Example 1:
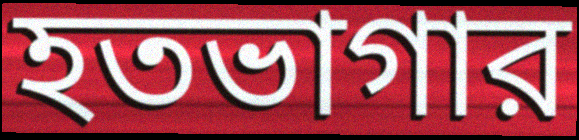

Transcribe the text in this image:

হতভাগার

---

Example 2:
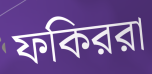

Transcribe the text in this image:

ফকিররা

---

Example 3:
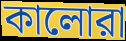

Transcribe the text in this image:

কালোরা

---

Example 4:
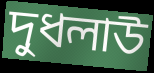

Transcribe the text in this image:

দুধলাউ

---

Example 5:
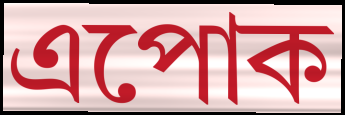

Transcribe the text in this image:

এপোক